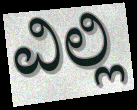
ವಿಲ್ಲಿ